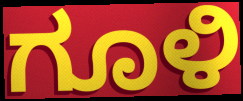
ಗೂಳಿ